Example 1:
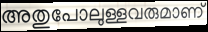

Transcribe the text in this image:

അതുപോലുള്ളവരുമാണ്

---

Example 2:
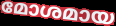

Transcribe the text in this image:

മോശമായ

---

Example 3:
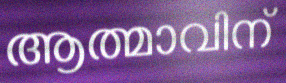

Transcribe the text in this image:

ആത്മാവിന്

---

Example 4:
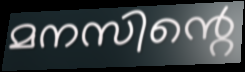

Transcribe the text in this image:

മനസിന്റെ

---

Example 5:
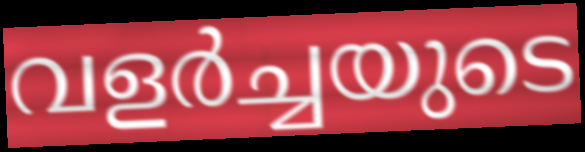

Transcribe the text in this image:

വളർച്ചയുടെ